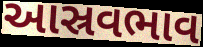
આસ્રવભાવ